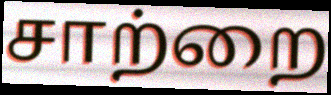
சாற்றை